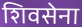
शिवसेना